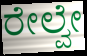
ರೇಲ್ವೇ